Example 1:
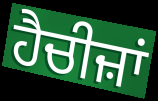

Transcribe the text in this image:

ਹੈਚੀਜ਼ਾਂ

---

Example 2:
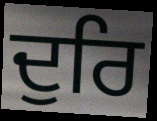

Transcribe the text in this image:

ਦੁਰਿ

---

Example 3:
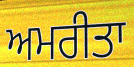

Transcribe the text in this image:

ਅਮਰੀਤਾ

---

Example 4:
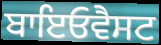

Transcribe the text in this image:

ਬਾਇਓਵੈਸਟ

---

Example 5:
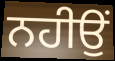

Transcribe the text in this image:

ਨਹੀਉਂ